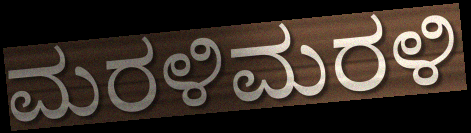
ಮರಳಿಮರಳಿ